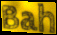
Bah